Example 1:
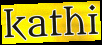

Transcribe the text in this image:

kathi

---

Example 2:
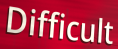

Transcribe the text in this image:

Difficult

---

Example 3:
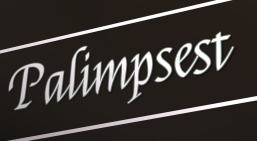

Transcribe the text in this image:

Palimpsest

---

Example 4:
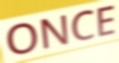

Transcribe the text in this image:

ONCE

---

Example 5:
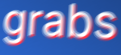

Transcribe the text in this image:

grabs